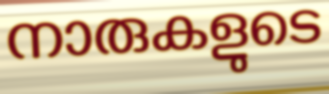
നാരുകളുടെ